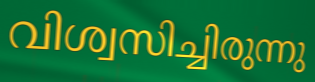
വിശ്വസിച്ചിരുന്നു